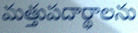
మత్తుపదార్థాలను